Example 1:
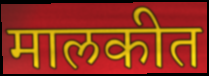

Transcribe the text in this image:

मालकीत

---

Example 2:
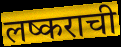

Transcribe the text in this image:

लष्कराची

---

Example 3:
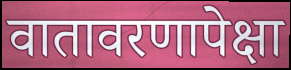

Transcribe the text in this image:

वातावरणापेक्षा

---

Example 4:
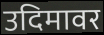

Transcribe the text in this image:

उदिमावर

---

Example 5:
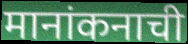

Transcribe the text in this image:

मानांकनाची